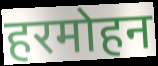
हरमोहन